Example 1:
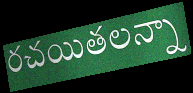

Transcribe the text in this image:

రచయితలన్నా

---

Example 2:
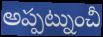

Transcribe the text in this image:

అప్పట్నుంచీ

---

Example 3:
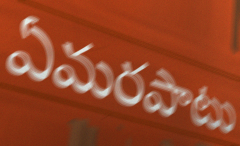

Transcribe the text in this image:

ఏమరపాటు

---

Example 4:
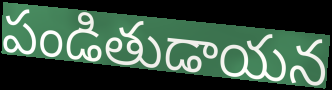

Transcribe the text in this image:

పండితుడాయన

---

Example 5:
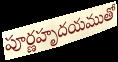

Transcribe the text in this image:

పూర్ణహృదయముతో